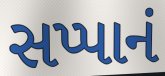
સપ્પાનં